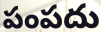
పంపదు